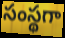
సంస్థగా